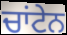
ਚਾਂਟੇਨ